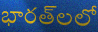
భారత్‌లలో